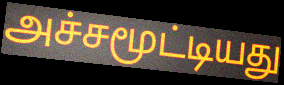
அச்சமூட்டியது